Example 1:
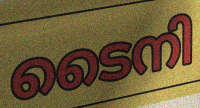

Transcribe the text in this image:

ടൈനി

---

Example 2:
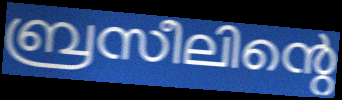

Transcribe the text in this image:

ബ്രസീലിന്റെ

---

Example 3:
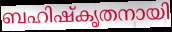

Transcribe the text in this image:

ബഹിഷ്കൃതനായി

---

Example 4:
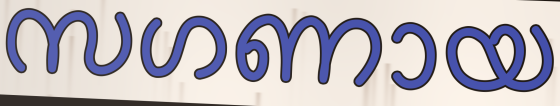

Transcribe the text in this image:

സഗണായ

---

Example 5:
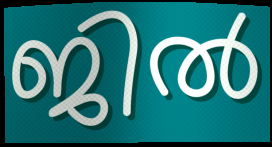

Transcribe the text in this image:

ജിൽ